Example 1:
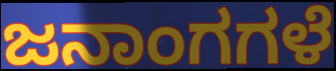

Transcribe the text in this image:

ಜನಾಂಗಗಳೆ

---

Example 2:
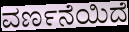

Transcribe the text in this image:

ವರ್ಣನೆಯಿದೆ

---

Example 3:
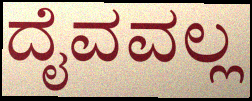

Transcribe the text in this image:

ದೈವವಲ್ಲ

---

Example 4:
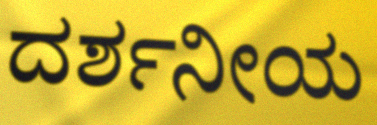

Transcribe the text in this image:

ದರ್ಶನೀಯ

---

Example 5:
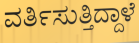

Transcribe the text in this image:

ವರ್ತಿಸುತ್ತಿದ್ದಾಳೆ